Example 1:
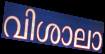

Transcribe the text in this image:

വിശാലാ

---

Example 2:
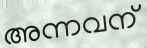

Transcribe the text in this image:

അന്നവന്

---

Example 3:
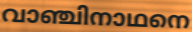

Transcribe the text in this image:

വാഞ്ചിനാഥനെ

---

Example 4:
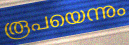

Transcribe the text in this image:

രൂപയെന്നും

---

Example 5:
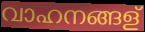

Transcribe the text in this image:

വാഹനങ്ങള്